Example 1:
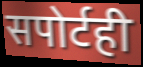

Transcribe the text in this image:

सपोर्टही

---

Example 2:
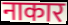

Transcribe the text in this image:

नाकार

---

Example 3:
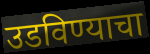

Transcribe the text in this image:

उडविण्याचा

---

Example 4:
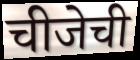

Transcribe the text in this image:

चीजेची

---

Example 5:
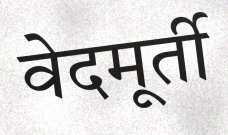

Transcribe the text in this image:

वेदमूर्ती